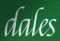
dales